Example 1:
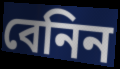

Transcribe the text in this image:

বেনিন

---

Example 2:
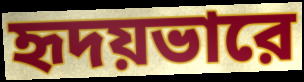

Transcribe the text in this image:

হৃদয়ভারে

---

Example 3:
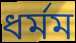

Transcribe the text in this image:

ধর্মম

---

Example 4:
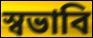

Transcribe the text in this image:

স্বভাবি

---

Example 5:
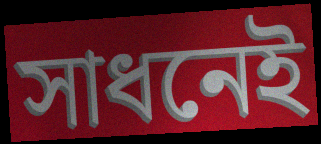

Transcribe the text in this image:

সাধনেই